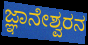
ಜ್ಞಾನೇಶ್ವರನ